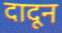
दादून